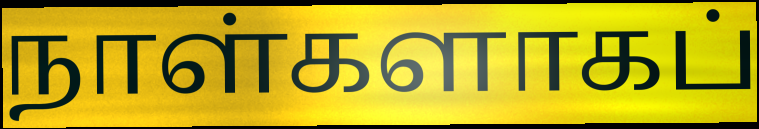
நாள்களாகப்